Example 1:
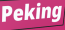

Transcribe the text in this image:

Peking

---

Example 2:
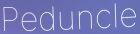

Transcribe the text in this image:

Peduncle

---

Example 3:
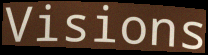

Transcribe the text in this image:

Visions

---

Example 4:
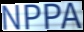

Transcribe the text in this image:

NPPA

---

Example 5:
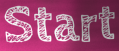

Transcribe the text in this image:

Start